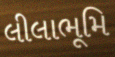
લીલાભૂમિ